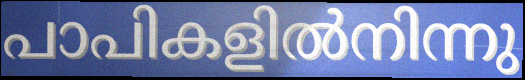
പാപികളിൽനിന്നു